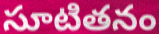
సూటితనం